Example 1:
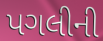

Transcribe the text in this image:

પગલીની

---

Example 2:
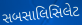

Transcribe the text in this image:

સબસાલિસિલેટ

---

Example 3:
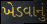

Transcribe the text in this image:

ખેડવાનું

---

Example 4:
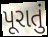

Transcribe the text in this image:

પૂરાતું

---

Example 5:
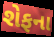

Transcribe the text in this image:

શેફના